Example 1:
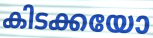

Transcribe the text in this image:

കിടക്കയോ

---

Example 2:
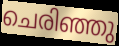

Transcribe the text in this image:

ചെരിഞ്ഞു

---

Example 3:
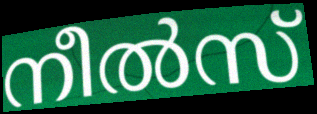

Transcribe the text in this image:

നീൽസ്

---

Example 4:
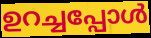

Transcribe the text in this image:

ഉറച്ചപ്പോൾ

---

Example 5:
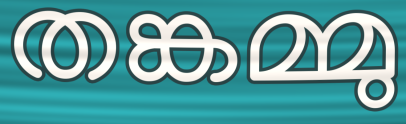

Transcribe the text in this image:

തങ്കമ്മു